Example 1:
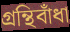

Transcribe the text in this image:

গ্রন্থিবাঁধা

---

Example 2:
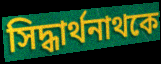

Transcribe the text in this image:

সিদ্ধার্থনাথকে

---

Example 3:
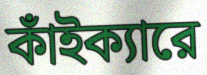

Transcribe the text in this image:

কাঁইক্যারে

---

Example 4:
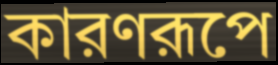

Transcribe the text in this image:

কারণরূপে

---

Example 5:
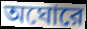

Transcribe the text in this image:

অঘোরে